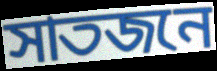
সাতজনে